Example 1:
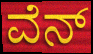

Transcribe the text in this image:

ವೆನ್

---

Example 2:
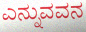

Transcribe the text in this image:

ಎನ್ನುವವನ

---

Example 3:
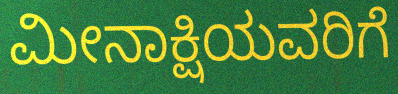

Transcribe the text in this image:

ಮೀನಾಕ್ಷಿಯವರಿಗೆ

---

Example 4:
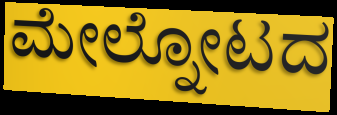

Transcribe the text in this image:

ಮೇಲ್ನೋಟದ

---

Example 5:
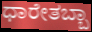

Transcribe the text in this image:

ಧಾರೇತಬ್ಬಾ